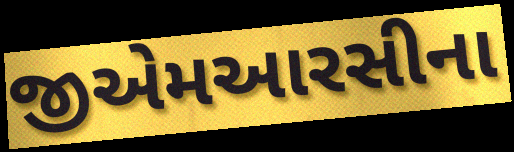
જીએમઆરસીના